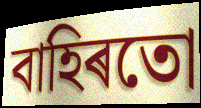
বাহিৰতো